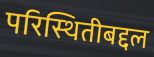
परिस्थितीबद्दल